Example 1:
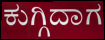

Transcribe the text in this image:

ಕುಗ್ಗಿದಾಗ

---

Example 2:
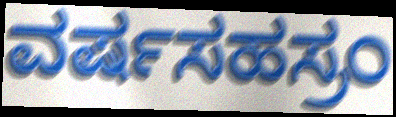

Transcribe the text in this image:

ವರ್ಷಸಹಸ್ರಂ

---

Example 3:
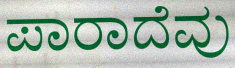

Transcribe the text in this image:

ಪಾರಾದೆವು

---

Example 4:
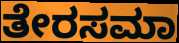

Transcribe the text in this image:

ತೇರಸಮಾ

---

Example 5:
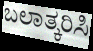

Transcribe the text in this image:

ಬಲಾತ್ಕರಿಸಿ